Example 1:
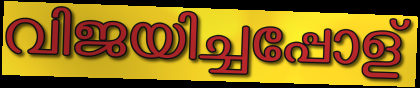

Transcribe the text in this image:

വിജയിച്ചപ്പോള്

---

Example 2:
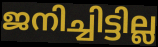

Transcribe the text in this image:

ജനിച്ചിട്ടില്ല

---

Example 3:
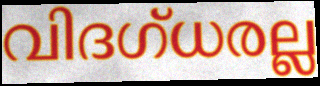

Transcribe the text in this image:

വിദഗ്ധരല്ല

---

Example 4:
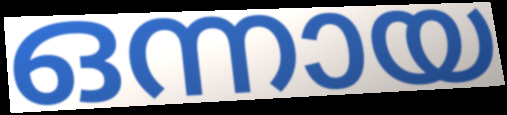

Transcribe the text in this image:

ഒന്നായ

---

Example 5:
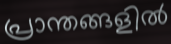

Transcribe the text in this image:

പ്രാന്തങ്ങളിൽ